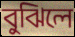
বুঝিলে